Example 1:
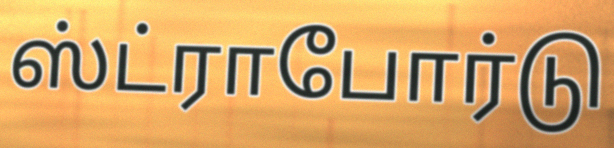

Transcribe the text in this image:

ஸ்ட்ராபோர்டு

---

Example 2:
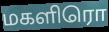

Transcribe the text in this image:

மகளிரொ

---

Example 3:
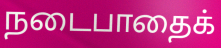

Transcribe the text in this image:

நடைபாதைக்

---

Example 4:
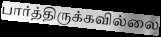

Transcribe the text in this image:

பார்த்திருக்கவில்லை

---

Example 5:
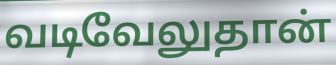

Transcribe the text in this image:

வடிவேலுதான்